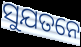
ସୁଯତନେ